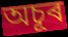
অচূৰ